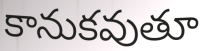
కానుకవుతూ